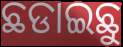
ଛଡାଇଛୁ